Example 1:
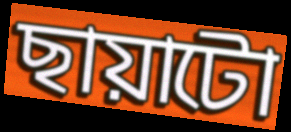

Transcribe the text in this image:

ছায়াটো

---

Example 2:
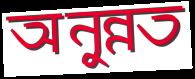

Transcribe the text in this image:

অনুন্নত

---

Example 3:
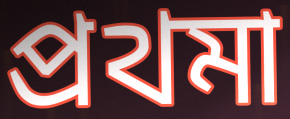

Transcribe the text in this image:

প্ৰথমা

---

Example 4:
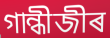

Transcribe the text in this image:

গান্ধীজীৰ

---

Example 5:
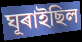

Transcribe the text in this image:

ঘূৰাইছিল